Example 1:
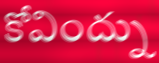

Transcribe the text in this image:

కోవింద్ను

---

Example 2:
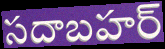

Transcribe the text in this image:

సదాబహర్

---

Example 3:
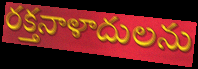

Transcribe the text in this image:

రక్తనాళాదులను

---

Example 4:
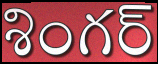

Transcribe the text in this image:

శింగర్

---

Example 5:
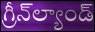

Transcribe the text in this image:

గ్రీన్‌ల్యాండ్